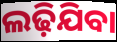
ଲଢ଼ିଯିବା